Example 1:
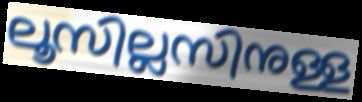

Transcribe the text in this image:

ലൂസില്ലസിനുള്ള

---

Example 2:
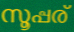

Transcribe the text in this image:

സൂപ്പര്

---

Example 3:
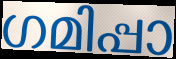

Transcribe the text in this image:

ഗമിപ്പാ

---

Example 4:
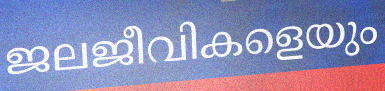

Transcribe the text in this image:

ജലജീവികളെയും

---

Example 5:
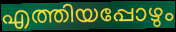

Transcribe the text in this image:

എത്തിയപ്പോഴും